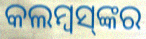
କଲମ୍ୱସ୍‌ଙ୍କର